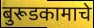
बुरूडकामाचे